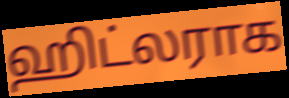
ஹிட்லராக